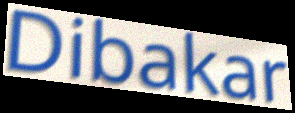
Dibakar